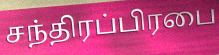
சந்திரப்பிரபை